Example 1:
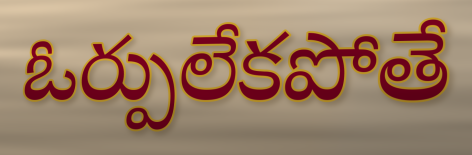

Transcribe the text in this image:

ఓర్పులేకపోతే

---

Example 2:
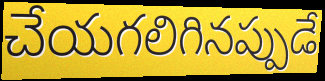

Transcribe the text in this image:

చేయగలిగినప్పుడే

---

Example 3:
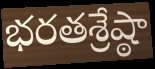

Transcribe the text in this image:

భరతశ్రేష్ఠా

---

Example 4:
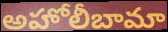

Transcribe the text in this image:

అహోలీబామా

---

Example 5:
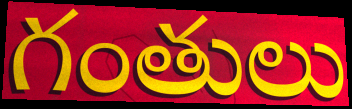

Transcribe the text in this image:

గంతులు